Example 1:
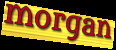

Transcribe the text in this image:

morgan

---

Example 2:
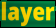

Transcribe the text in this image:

layer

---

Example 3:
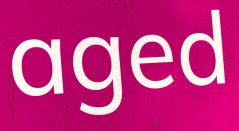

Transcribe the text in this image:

aged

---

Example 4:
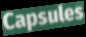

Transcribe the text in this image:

Capsules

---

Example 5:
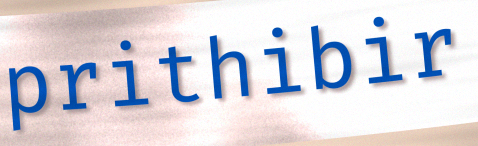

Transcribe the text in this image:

prithibir